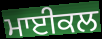
ਮਾਈਕਲ